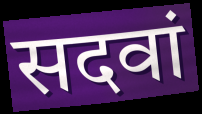
सदवां